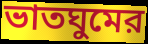
ভাতঘুমের